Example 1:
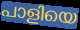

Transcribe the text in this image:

പാളിയെ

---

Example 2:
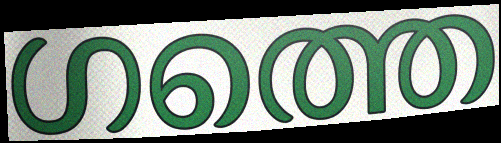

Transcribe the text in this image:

ഗത്തെ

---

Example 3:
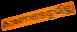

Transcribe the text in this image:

കാണേണ്ടതുമില്ല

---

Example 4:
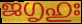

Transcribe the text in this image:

ജഗൃഹുഃ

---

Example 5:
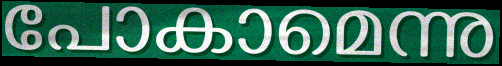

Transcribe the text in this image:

പോകാമെന്നു